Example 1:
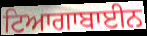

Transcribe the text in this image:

ਟਿਆਗਾਬਾਈਨ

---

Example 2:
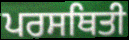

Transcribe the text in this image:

ਪਰਸਥਿਤੀ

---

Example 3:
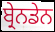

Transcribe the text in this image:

ਬ੍ਰੇਨਡੇਨ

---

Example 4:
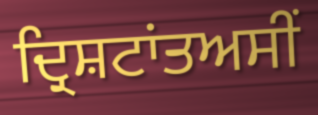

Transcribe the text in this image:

ਦ੍ਰਿਸ਼ਟਾਂਤਅਸੀਂ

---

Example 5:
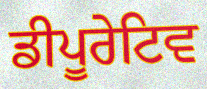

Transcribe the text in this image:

ਡੀਪੂਰੇਟਿਵ